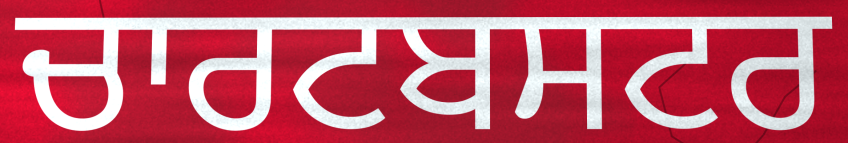
ਚਾਰਟਬਸਟਰ